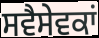
ਸਵੈਸੇਵਕਾਂ